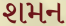
શમન